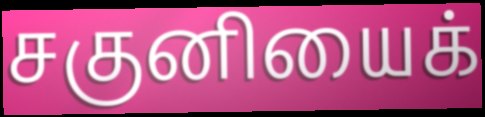
சகுனியைக்